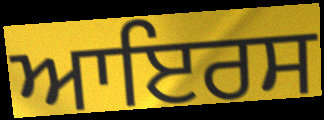
ਆਇਰਸ